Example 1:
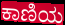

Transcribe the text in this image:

ಕಾಣಿಯ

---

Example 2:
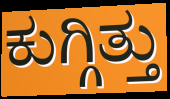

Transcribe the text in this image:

ಕುಗ್ಗಿತ್ತು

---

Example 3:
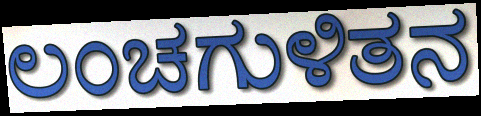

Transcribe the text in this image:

ಲಂಚಗುಳಿತನ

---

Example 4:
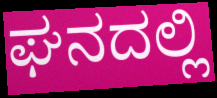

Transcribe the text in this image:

ಘನದಲ್ಲಿ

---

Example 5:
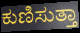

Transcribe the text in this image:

ಕುಣಿಸುತ್ತಾ